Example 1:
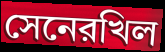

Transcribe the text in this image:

সেনেরখিল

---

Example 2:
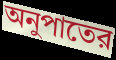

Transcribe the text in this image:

অনুপাতের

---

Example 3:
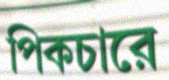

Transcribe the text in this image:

পিকচারে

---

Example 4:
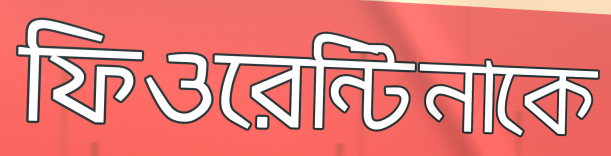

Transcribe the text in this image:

ফিওরেন্টিনাকে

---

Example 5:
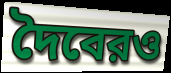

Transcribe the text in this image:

দৈবেরও